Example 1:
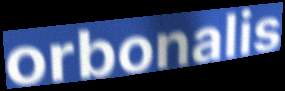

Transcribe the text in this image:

orbonalis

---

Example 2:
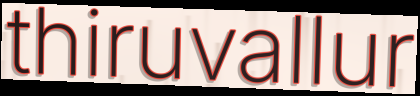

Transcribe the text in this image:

thiruvallur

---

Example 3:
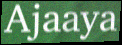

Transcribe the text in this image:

Ajaaya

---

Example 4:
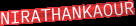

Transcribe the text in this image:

NIRATHANKAOUR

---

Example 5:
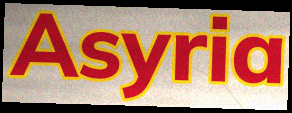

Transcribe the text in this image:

Asyria